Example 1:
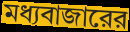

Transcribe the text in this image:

মধ্যবাজারের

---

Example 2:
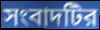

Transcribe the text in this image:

সংবাদটির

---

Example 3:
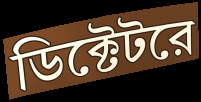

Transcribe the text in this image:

ডিক্টেটরে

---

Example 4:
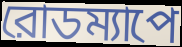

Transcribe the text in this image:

রোডম্যাপে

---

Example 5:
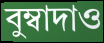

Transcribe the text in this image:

বুম্বাদাও